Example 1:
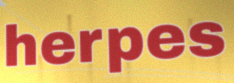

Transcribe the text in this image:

herpes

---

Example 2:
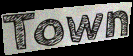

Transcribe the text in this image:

Town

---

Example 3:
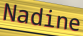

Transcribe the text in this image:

Nadine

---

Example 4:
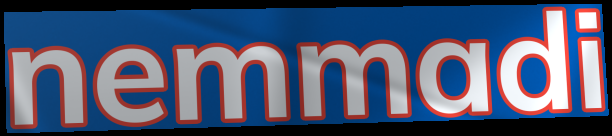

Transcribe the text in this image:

nemmadi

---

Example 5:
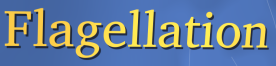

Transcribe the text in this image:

Flagellation